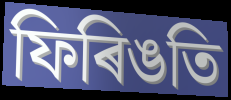
ফিৰিঙতি